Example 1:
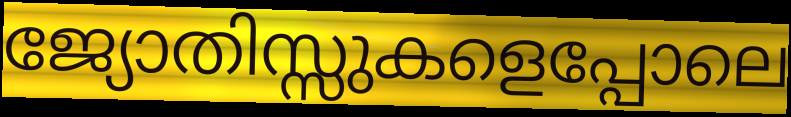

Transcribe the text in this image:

ജ്യോതിസ്സുകളെപ്പോലെ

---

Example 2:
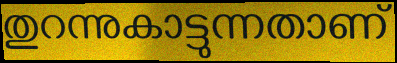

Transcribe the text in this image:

തുറന്നുകാട്ടുന്നതാണ്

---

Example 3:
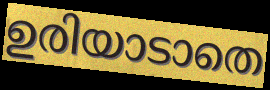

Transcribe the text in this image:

ഉരിയാടാതെ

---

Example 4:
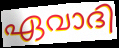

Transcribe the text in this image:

ഏവാദി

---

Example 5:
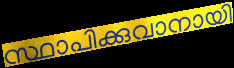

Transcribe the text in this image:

സ്ഥാപിക്കുവാനായി